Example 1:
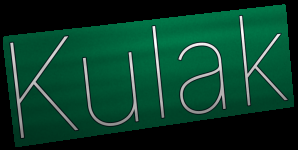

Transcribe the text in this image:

Kulak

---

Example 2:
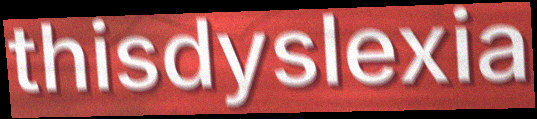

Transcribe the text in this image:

thisdyslexia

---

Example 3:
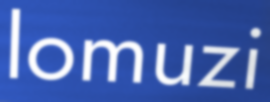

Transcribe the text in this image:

lomuzi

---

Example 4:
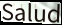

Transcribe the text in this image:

Salud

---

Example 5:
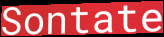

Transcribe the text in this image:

Sontate